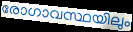
രോഗാവസ്ഥയിലും